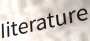
Iiterature